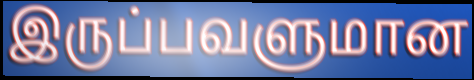
இருப்பவளுமான